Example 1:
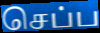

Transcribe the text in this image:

செப்ப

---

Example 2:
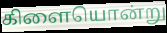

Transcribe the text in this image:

கிளையொன்று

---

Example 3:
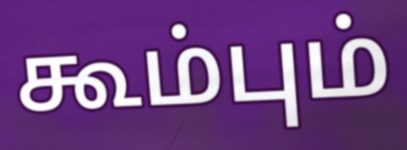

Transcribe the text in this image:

கூம்பும்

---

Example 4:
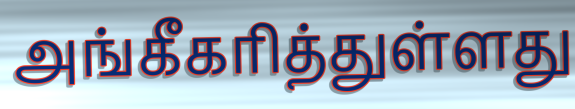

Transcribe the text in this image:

அங்கீகரித்துள்ளது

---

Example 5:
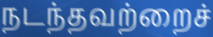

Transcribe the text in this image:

நடந்தவற்றைச்